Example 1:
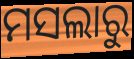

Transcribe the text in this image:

ମସଲାରୁ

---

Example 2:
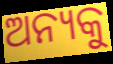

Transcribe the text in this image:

ଅନ୍ୟକୁ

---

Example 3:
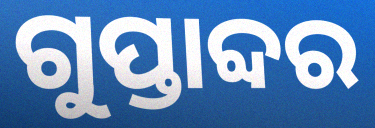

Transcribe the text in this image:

ଗୁପ୍ତାବ୍ଦର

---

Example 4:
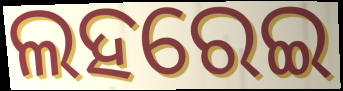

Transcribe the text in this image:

ଲହରେଇ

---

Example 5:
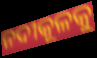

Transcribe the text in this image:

ନଦୀକୂଳକୁ